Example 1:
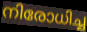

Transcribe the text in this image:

നിരോധിച്ച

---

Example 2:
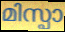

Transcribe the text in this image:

മിസ്പാ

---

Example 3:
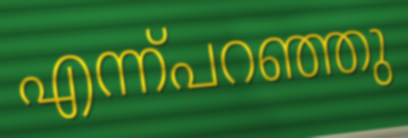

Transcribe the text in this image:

എന്ന്പറഞ്ഞു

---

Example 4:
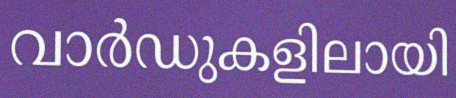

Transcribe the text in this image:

വാർഡുകളിലായി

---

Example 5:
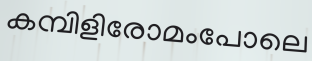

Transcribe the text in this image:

കമ്പിളിരോമംപോലെ